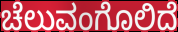
ಚೆಲುವಂಗೊಲಿದೆ